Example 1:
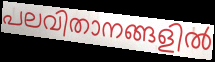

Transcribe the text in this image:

പലവിതാനങ്ങളിൽ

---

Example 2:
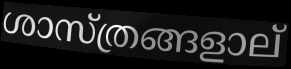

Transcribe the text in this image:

ശാസ്ത്രങ്ങളാല്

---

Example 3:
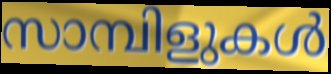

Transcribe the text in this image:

സാമ്പിളുകൾ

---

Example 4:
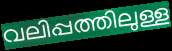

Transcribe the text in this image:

വലിപ്പത്തിലുള്ള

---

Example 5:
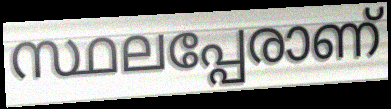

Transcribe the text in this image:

സ്ഥലപ്പേരാണ്